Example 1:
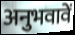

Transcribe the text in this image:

अनुभवावें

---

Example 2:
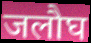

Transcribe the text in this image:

जलौघ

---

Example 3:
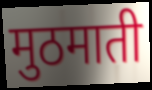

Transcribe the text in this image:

मुठमाती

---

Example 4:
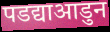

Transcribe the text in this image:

पडद्याआडुन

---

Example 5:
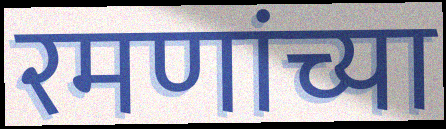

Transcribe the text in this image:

रमणांच्या